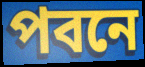
পবনে